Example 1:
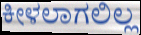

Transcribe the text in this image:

ಕೀಳಲಾಗಲಿಲ್ಲ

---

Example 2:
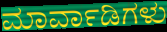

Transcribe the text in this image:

ಮಾರ್ವಾಡಿಗಳು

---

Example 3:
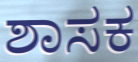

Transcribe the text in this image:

ಶಾಸಕ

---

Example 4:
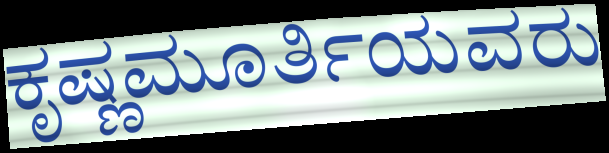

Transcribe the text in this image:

ಕೃಷ್ಣಮೂರ್ತಿಯವರು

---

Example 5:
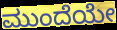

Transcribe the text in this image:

ಮುಂದೆಯೇ